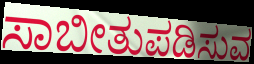
ಸಾಬೀತುಪಡಿಸುವ